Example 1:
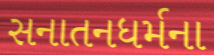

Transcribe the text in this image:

સનાતનધર્મના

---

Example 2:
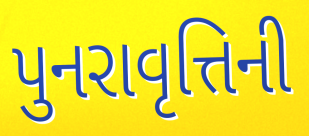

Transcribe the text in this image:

પુનરાવૃત્તિની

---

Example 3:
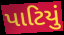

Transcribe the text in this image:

પાટિયું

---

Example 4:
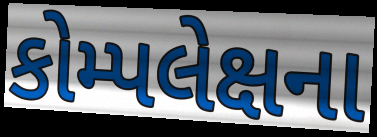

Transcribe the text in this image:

કોમ્પલેક્ષના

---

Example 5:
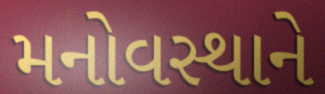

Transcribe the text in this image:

મનોવસ્થાને